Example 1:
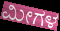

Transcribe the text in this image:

ಮೀಗಳ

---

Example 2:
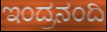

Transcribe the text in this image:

ಇಂದ್ರನಂದಿ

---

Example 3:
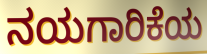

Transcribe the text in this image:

ನಯಗಾರಿಕೆಯ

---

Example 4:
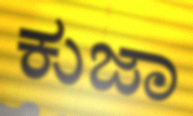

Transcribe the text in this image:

ಕುಜಾ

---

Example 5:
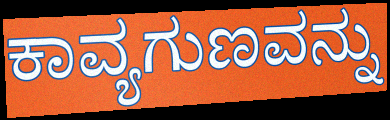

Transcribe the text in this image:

ಕಾವ್ಯಗುಣವನ್ನು